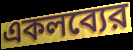
একলব্যের